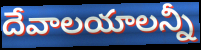
దేవాలయాలన్నీ